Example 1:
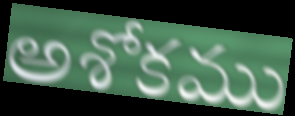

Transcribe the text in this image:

అశోకము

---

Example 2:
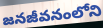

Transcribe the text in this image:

జనజీవనంలోని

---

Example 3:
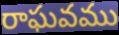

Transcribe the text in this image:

రాఘవము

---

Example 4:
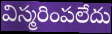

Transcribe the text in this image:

విస్మరింపలేదు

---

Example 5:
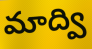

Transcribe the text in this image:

మాద్వి